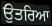
ਉਤਰਿਆ